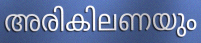
അരികിലണയും